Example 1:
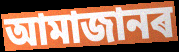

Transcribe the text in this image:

আমাজানৰ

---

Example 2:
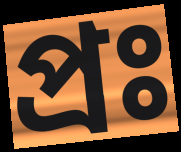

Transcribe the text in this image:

প্ৰঃ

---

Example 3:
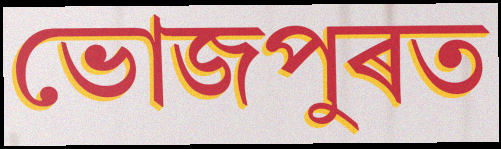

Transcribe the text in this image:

ভোজপুৰত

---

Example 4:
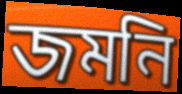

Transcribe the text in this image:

জমনি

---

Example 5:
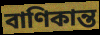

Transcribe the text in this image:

বাণিকান্ত